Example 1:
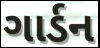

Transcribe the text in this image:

ગાર્ડન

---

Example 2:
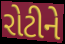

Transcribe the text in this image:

રોટીને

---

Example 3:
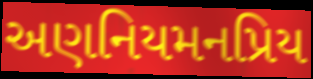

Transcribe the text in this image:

અણનિયમનપ્રિય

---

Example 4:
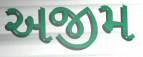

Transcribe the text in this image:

અજીમ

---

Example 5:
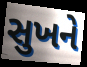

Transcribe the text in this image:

સુખને